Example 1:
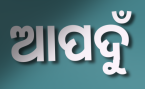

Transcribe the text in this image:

ଆପଦୁଁ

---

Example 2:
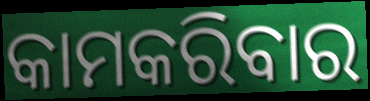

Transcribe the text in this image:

କାମକରିବାର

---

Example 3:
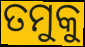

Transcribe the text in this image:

ତମୁକୁ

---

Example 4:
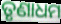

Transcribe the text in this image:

ତୃଣାଧମ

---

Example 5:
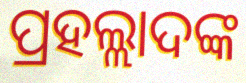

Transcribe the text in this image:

ପ୍ରହଲ୍ଲାଦଙ୍କ